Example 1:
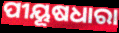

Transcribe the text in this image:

ପୀୟୂଷଧାରା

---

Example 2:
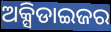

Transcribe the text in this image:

ଅକ୍ସିଡାଇଜର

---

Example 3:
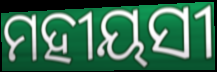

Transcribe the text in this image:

ମହୀୟସୀ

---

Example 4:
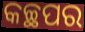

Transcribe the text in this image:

କଚ୍ଛପର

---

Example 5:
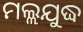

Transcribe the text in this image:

ମଲ୍ଲଯୁଦ୍ଧ